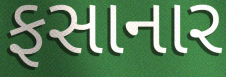
ફસાનાર